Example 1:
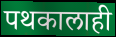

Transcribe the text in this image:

पथकालाही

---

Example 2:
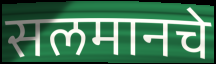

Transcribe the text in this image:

सलमानचे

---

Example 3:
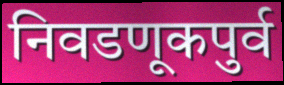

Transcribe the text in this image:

निवडणूकपुर्व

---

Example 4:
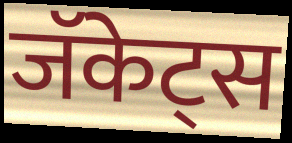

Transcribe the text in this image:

जॅकेट्स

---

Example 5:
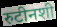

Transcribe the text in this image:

रुटीनशी